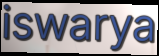
iswarya